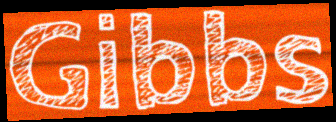
Gibbs